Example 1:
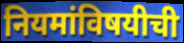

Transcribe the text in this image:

नियमांविषयीची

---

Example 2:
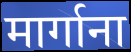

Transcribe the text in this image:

मार्गाना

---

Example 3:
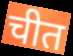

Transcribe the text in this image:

चीत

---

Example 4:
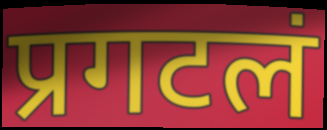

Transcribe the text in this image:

प्रगटलं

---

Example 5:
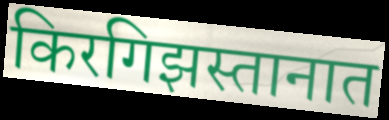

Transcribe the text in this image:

किरगिझस्तानात